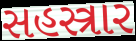
સહસ્ત્રાર